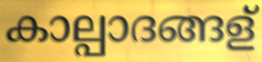
കാല്പാദങ്ങള്